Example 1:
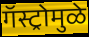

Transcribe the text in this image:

गॅस्ट्रोमुळे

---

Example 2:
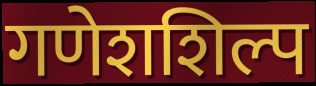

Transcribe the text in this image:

गणेशशिल्प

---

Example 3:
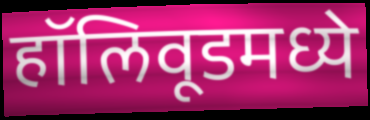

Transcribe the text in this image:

हॉलिवूडमध्ये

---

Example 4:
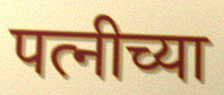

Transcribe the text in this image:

पत्नीच्या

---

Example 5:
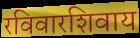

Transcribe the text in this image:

रविवारशिवाय